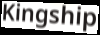
Kingship